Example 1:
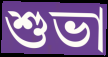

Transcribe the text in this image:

শুভা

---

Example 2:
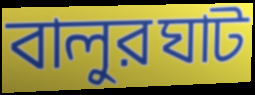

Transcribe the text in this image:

বালুরঘাট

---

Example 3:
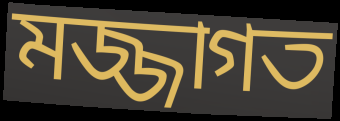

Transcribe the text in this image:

মজ্জাগত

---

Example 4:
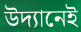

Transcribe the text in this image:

উদ্যানেই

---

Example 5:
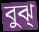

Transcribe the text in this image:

বুঝ্